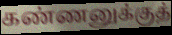
கண்ணனுக்குத்